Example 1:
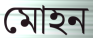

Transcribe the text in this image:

মোহন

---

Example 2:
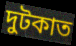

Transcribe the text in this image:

দুটকাত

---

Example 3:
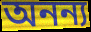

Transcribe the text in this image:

অনন্য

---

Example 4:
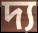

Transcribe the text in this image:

দ্য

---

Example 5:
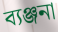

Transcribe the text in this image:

ব্যঞ্জনা